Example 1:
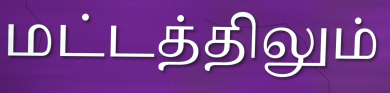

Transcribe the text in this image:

மட்டத்திலும்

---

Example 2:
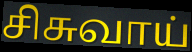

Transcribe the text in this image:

சிசுவாய்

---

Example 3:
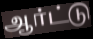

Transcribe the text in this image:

ஆர்ட்டு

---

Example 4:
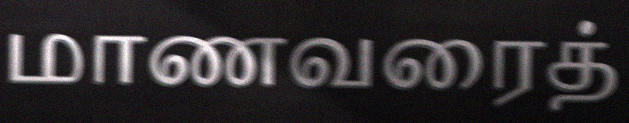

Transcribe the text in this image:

மாணவரைத்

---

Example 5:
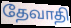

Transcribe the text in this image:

தேவாதி